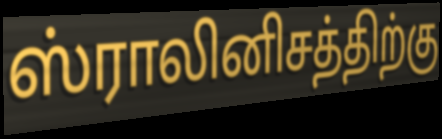
ஸ்ராலினிசத்திற்கு